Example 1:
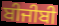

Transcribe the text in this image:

ਬੀਜੀਬੀ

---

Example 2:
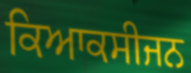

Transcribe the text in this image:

ਕਿਆਕਸੀਜਨ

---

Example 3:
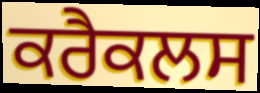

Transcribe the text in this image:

ਕਰੈਕਲਸ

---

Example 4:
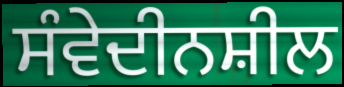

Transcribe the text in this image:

ਸੰਵੇਦੀਨਸ਼ੀਲ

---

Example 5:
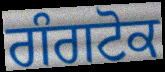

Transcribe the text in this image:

ਗੰਗਟੋਕ